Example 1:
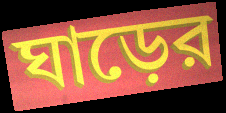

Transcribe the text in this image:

ঘাড়ের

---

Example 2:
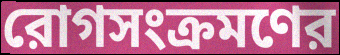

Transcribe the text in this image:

রোগসংক্রমণের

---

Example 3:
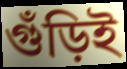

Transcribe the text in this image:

গুঁড়িই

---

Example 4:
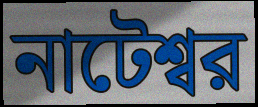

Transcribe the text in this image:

নাটেশ্বর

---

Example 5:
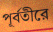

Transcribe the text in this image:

পূর্বতীরে